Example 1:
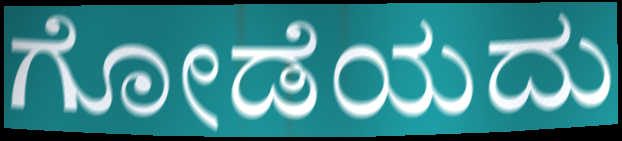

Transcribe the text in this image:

ಗೋಡೆಯದು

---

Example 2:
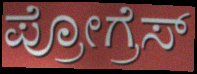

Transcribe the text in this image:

ಪ್ರೋಗ್ರೆಸ್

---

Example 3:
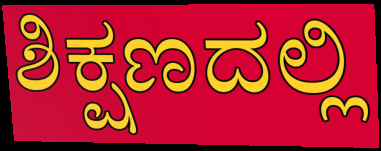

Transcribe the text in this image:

ಶಿಕ್ಷಣದಲ್ಲಿ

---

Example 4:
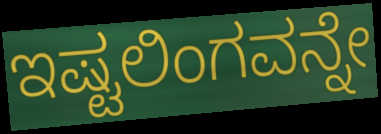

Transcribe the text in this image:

ಇಷ್ಟಲಿಂಗವನ್ನೇ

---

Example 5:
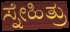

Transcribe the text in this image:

ಸ್ನೇಹಿತ್ರು